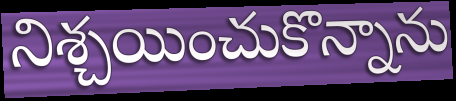
నిశ్చయించుకొన్నాను